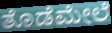
ತೊಡೆಮೇಲೆ